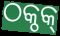
ଠକ୍ଠକ୍